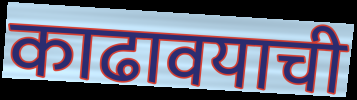
काढावयाची